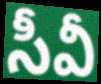
సీవీ